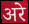
अरे